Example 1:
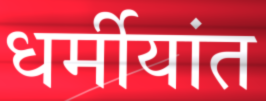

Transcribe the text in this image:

धर्मीयांत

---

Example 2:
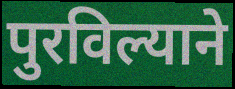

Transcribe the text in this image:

पुरविल्याने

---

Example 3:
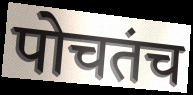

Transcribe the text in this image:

पोचतंच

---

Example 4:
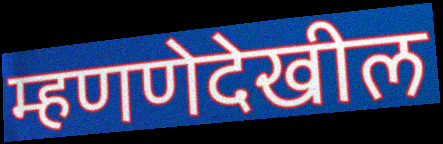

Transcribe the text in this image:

म्हणणेदेखील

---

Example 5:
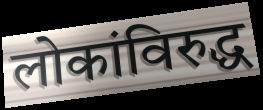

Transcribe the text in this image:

लोकांविरुद्ध